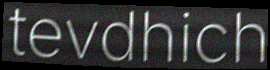
tevdhich